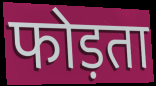
फोड़ता